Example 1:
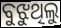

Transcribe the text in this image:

ବୁଝୁଥିଲୁ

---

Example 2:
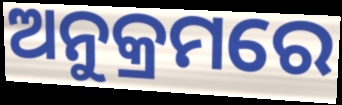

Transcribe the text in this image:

ଅନୁକ୍ରମରେ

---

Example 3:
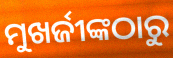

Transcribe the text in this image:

ମୁଖର୍ଜୀଙ୍କଠାରୁ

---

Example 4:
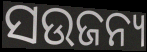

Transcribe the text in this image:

ସଉଜନ୍ୟ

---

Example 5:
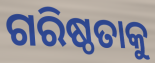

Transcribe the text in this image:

ଗରିଷ୍ଠତାକୁ